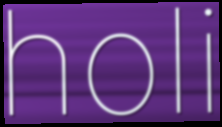
holi